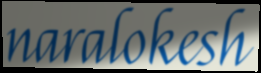
naralokesh